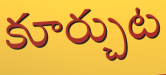
కూర్చుట